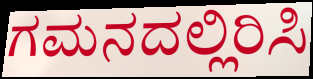
ಗಮನದಲ್ಲಿರಿಸಿ